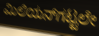
ಮಿಲಿಯನ್‌ಗಟ್ಟಲೇ